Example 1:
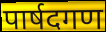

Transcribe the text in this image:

पार्षदगण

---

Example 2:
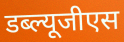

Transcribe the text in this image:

डब्ल्यूजीएस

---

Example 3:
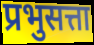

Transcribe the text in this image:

प्रभुसत्ता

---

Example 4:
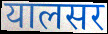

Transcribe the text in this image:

यालसर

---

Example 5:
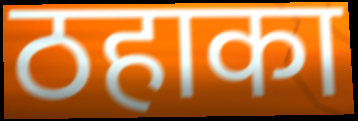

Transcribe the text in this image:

ठहाका